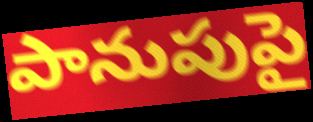
పానుపుపై